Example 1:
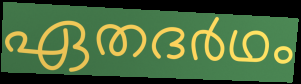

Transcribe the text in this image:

ഏതദർഥം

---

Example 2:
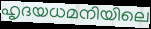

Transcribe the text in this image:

ഹൃദയധമനിയിലെ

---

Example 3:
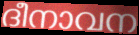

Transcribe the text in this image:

ദീനാവന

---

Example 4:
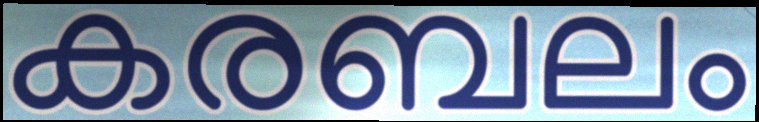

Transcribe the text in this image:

കരബലം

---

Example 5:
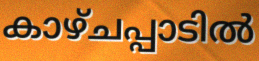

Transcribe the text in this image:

കാഴ്ചപ്പാടിൽ